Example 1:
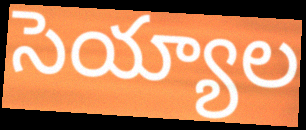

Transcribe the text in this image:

సెయ్యాల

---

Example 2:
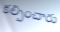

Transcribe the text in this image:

కల్పించారు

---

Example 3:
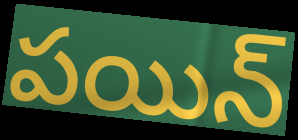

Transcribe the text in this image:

పయిన్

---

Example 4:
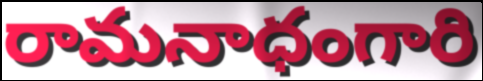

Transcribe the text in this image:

రామనాధంగారి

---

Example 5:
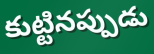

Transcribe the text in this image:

కుట్టినప్పుడు